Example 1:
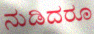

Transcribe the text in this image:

ನುಡಿದರೂ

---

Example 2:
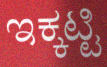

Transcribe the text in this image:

ಇಕ್ಕಟ್ಟಿ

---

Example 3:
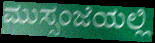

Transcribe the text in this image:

ಮುಸ್ಸಂಜೆಯಲ್ಲಿ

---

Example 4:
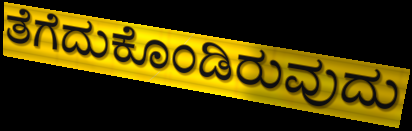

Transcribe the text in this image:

ತೆಗೆದುಕೊಂಡಿರುವುದು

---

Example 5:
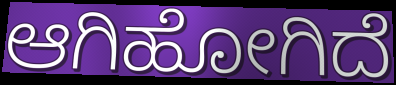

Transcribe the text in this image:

ಆಗಿಹೋಗಿದೆ